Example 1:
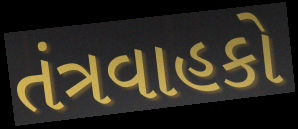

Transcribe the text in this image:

તંત્રવાહકો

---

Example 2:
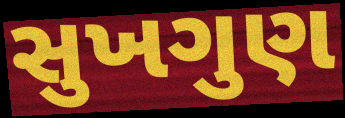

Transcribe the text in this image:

સુખગુણ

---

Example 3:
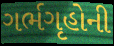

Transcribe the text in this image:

ગર્ભગૃહોની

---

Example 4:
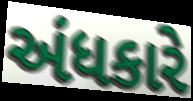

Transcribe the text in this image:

અંધકારે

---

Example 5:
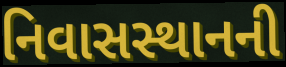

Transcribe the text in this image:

નિવાસસ્થાનની